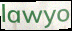
lawyo